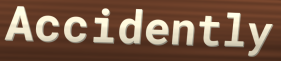
Accidently